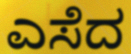
ಎಸೆದ